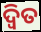
ଦ୍ବିତ